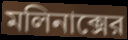
মলিনাক্সের